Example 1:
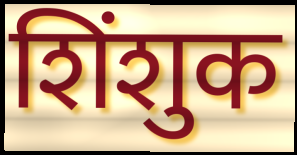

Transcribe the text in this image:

शिंशुक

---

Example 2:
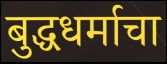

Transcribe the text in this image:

बुद्धधर्माचा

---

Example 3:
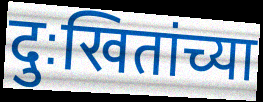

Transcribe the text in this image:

दुःखितांच्या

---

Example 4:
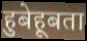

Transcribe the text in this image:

हुबेहूबता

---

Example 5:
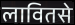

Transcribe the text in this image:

लावितसे